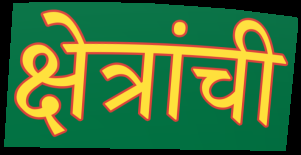
क्षेत्रांची